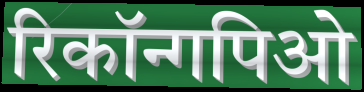
रिकॉन्गपिओ